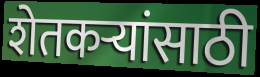
शेतकऱ्यांसाठी